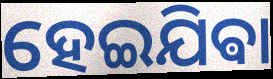
ହେଇଯିଵା